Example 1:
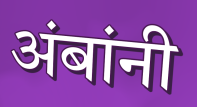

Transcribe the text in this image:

अंबांनी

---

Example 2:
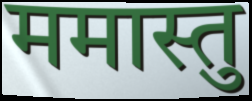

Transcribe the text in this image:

ममास्तु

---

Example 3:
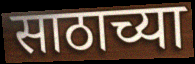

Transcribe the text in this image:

साठाच्या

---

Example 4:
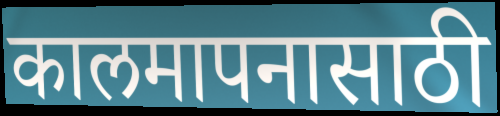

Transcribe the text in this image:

कालमापनासाठी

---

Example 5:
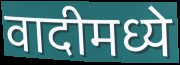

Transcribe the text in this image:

वादीमध्ये